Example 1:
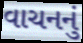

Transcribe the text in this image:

વાચનનું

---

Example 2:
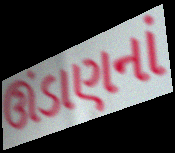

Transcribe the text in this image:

ઊંડાણનાં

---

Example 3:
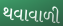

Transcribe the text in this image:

થવાવાળી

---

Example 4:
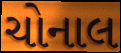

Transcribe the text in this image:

ચોનાલ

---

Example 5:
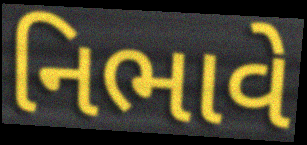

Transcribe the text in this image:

નિભાવે